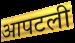
आपटली